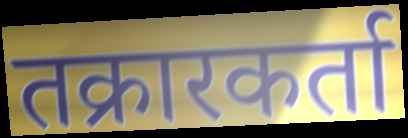
तक्रारकर्ता